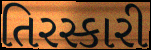
તિરસ્કારી